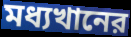
মধ্যখানের